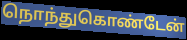
நொந்துகொண்டேன்